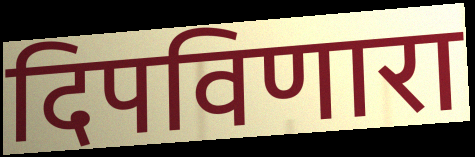
दिपविणारा